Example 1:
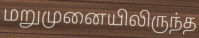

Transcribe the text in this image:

மறுமுனையிலிருந்த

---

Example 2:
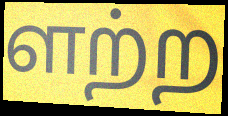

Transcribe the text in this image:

ளற்ற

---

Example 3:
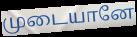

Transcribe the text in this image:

முடையானே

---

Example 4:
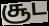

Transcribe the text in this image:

சூட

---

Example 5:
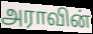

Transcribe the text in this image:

அராவின்